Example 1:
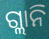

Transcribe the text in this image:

ଗ୍ଲାନି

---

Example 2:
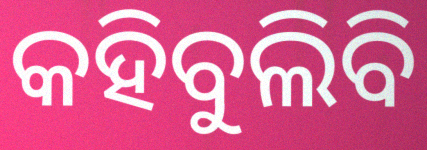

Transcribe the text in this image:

କହିବୁଲିବି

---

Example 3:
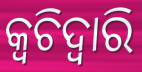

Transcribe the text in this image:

କ୍ଵଚିଦ୍ୱାରି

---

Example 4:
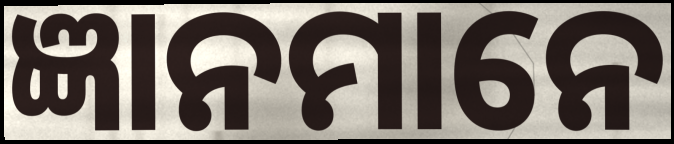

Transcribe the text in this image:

ଜ୍ଞାନମାନେ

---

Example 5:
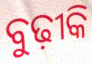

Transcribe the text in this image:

ବୁଢ଼ୀକି